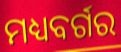
ମଧ୍ୟବର୍ଗର